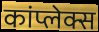
कांप्लेक्स